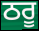
ਠਰੂ